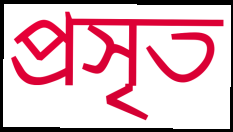
প্রসৃত